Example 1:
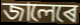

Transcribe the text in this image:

জালেৰে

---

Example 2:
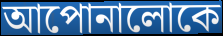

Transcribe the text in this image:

আপোনালোকে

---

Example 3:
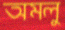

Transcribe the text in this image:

অমলু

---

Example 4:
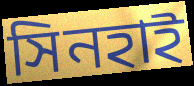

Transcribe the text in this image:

সিনহাই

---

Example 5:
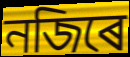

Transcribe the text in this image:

নজিৰে